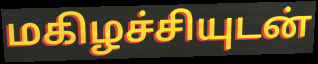
மகிழச்சியுடன்